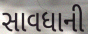
સાવધાની